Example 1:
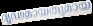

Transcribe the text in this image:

ദൃഢമായതുമായ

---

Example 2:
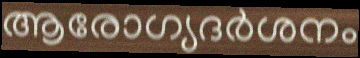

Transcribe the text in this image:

ആരോഗ്യദർശനം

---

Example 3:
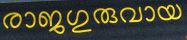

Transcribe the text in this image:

രാജഗുരുവായ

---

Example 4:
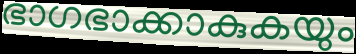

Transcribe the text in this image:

ഭാഗഭാക്കാകുകയും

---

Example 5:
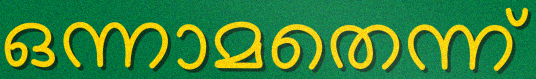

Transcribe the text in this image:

ഒന്നാമതെന്ന്